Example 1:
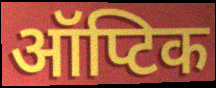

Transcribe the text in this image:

ऑप्टिक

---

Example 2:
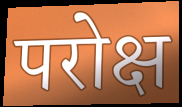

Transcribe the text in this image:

परोक्ष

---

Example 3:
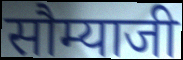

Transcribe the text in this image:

सौम्याजी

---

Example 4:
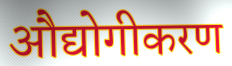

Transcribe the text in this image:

औद्योगीकरण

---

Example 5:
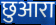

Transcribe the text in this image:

छुआरा